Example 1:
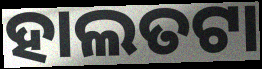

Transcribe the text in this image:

ହାଲତଟା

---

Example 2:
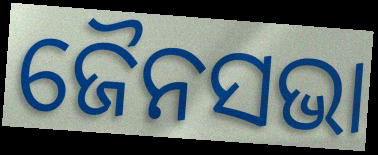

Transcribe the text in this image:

ଜୈନସଭା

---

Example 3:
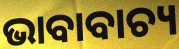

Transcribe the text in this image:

ଭାବାବାଚ୍ୟ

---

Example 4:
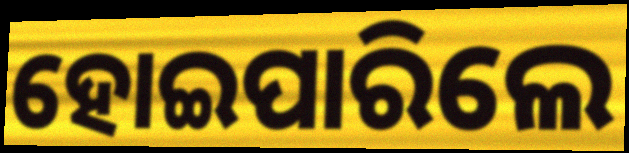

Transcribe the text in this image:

ହୋଇପାରିଲେ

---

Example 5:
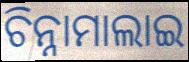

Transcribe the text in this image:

ଚିନ୍ନାମାଲାଇ